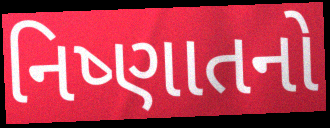
નિષ્ણાતનો